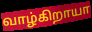
வாழ்கிறாயா